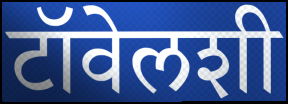
टॉवेलशी